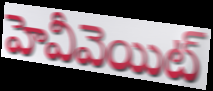
హెవీవెయిట్